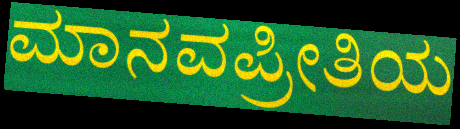
ಮಾನವಪ್ರೀತಿಯ